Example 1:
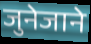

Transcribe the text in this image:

जुनेजाने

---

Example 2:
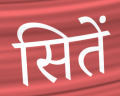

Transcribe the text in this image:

सितें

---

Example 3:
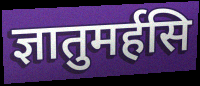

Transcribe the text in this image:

ज्ञातुमर्हसि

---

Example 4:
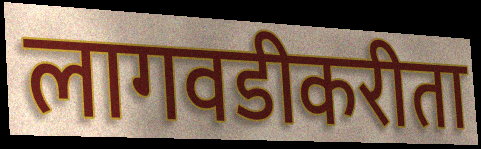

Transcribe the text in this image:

लागवडीकरीता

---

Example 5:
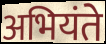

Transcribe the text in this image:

अभियंते